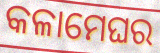
କଳାମେଘର